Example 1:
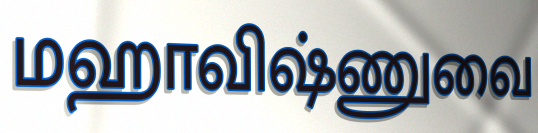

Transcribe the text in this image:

மஹாவிஷ்ணுவை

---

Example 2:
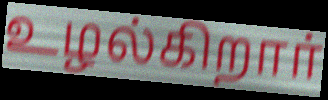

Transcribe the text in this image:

உழல்கிறார்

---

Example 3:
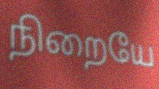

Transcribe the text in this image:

நிறையே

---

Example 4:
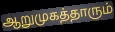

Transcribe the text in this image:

ஆறுமுகத்தாரும்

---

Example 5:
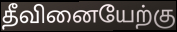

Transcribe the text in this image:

தீவினையேற்கு